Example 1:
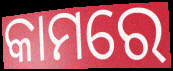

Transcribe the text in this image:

କାମରେ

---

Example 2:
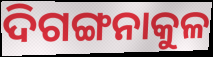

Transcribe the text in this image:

ଦିଗଙ୍ଗନାକୁଳ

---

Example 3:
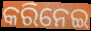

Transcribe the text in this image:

କରିନେଇ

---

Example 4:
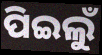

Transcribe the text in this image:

ପିଇଲୁଁ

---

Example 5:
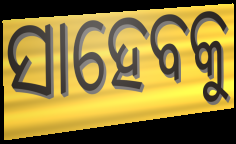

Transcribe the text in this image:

ସାହେବକୁ